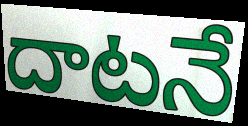
దాటనే